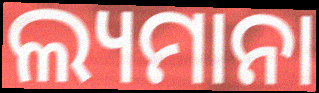
ଲ୍ୟମାନା